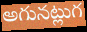
అగునట్లుగ